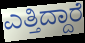
ಎತ್ತಿದ್ದಾರೆ